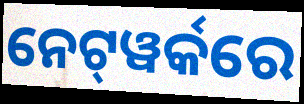
ନେଟ୍‍ୱର୍କରେ